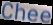
Chee